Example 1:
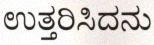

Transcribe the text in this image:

ಉತ್ತರಿಸಿದನು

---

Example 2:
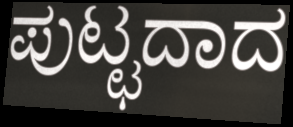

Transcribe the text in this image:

ಪುಟ್ಟದಾದ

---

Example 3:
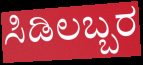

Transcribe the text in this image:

ಸಿಡಿಲಬ್ಬರ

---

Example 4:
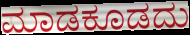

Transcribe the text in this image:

ಮಾಡಕೂಡದು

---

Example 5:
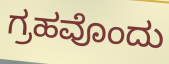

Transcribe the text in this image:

ಗ್ರಹವೊಂದು